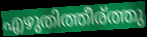
എഴുതിത്തീര്ത്തു